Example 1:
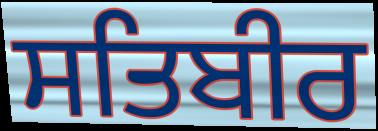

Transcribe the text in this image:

ਸਤਿਬੀਰ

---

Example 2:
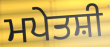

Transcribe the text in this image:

ਮਪੇਤਸ਼ੀ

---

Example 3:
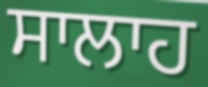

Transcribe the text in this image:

ਸਾਲਾਹ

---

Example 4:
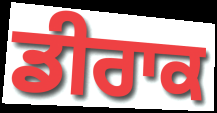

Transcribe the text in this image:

ਡੀਰਾਕ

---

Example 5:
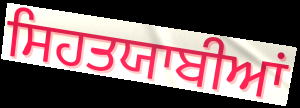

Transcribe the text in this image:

ਸਿਹਤਯਾਬੀਆਂ